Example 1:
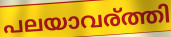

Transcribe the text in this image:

പലയാവര്ത്തി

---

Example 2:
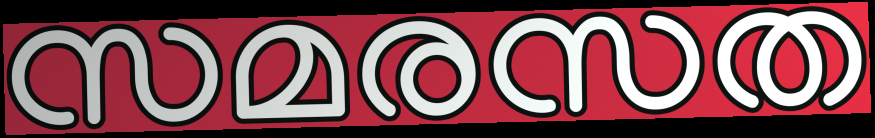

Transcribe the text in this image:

സമരസത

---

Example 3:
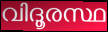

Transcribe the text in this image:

വിദൂരസ്ഥ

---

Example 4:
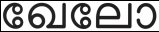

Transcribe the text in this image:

ഖേലോ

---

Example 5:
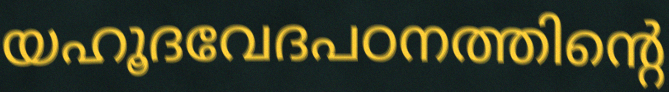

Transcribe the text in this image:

യഹൂദവേദപഠനത്തിന്റെ